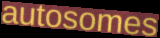
autosomes